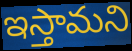
ఇస్తామని